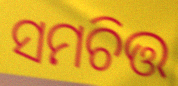
ସମଚିତ୍ତ